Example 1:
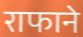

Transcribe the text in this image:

राफाने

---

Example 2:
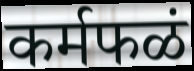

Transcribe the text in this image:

कर्मफळं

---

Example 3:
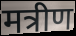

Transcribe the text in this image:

मत्रीण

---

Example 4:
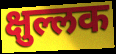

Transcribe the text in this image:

क्षुल्लक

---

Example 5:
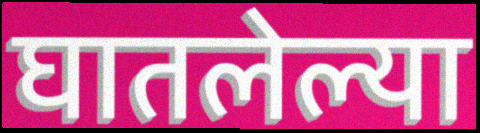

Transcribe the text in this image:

घातलेल्या